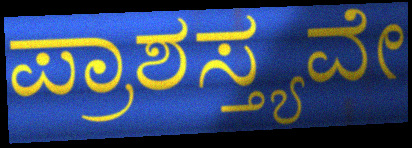
ಪ್ರಾಶಸ್ತ್ಯವೇ